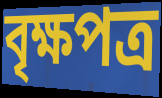
বৃক্ষপত্র